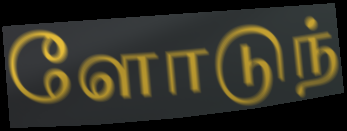
ளோடுந்